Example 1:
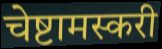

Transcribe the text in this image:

चेष्टामस्करी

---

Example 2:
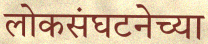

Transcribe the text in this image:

लोकसंघटनेच्या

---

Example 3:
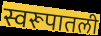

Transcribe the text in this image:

स्वरूपातली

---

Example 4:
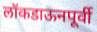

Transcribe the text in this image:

लॉकडाऊनपूर्वी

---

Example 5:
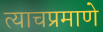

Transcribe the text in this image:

त्याचप्रमाणे